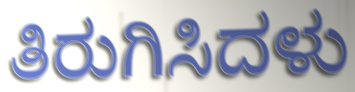
ತಿರುಗಿಸಿದಳು